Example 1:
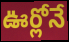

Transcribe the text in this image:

ఊర్లోనే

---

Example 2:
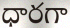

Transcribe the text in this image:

ధారగా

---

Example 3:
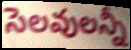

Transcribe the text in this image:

సెలవులన్నీ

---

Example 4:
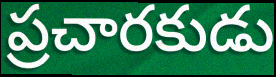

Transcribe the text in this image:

ప్రచారకుడు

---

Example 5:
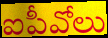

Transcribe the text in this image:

ఐపీవోలు